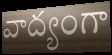
వాద్యంగా